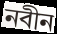
নবীন